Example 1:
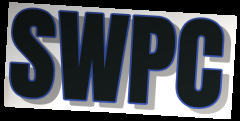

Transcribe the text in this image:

SWPC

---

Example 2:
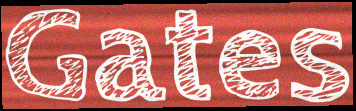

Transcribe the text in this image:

Gates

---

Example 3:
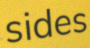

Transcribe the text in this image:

sides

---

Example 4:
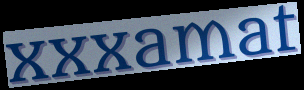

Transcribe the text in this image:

xxxamat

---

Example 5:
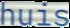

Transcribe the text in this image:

huis